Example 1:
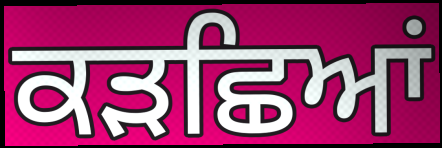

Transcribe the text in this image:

ਕੜਛਿਆਂ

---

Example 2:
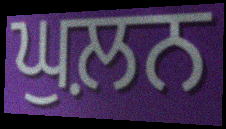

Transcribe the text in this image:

ਘੁਲ਼ਨ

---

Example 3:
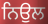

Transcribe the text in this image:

ਨਿਉਲ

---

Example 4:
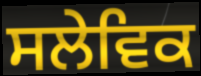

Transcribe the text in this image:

ਸਲੇਵਿਕ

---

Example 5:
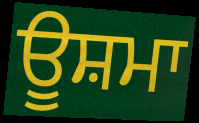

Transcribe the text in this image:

ਊਸ਼ਮਾ